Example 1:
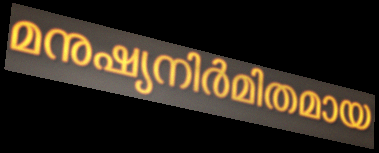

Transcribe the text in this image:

മനുഷ്യനിർമിതമായ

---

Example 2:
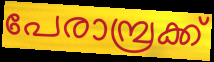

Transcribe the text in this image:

പേരാമ്പ്രക്ക്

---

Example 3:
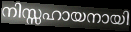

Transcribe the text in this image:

നിസ്സഹായനായി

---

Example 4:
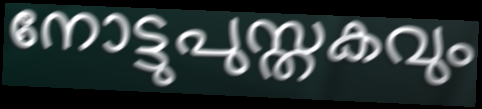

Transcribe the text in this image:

നോട്ടുപുസ്തകവും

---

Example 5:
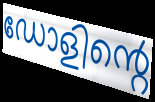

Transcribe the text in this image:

ഡോളിന്റെ